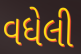
વધેલી